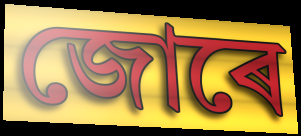
জোৰে